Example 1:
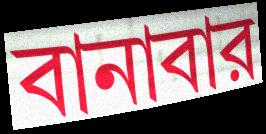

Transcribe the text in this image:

বানাবার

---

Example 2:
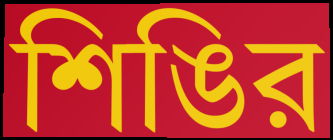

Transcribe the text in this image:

শিঙির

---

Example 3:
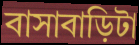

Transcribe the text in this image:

বাসাবাড়িটা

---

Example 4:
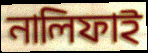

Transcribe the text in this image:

নালিফাই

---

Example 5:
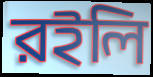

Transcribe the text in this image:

রইলি